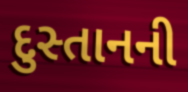
દુસ્તાનની